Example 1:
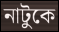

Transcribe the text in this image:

নাটুকে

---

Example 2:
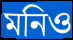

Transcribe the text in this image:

মনিও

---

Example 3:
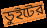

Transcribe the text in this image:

ডুইটের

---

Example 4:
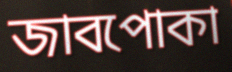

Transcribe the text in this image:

জাবপোকা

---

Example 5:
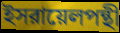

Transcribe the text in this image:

ইসরায়েলপন্থী